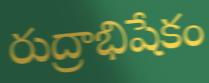
రుద్రాభిషేకం